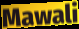
Mawali